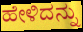
ಹೇಳಿದನ್ನು